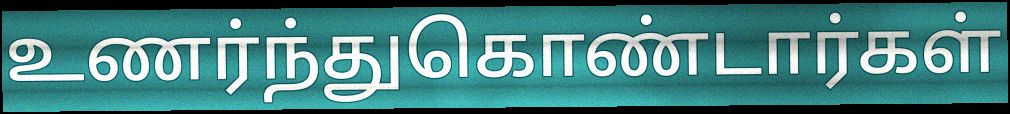
உணர்ந்துகொண்டார்கள்